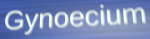
Gynoecium